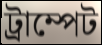
ট্রাম্পেট